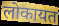
लोकायत